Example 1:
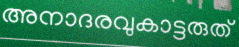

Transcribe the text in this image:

അനാദരവുകാട്ടരുത്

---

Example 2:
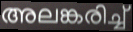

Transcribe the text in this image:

അലങ്കരിച്ച്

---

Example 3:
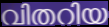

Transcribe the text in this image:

വിതറിയ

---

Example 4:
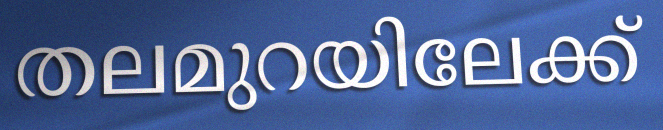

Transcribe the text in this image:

തലമുറയിലേക്ക്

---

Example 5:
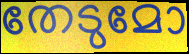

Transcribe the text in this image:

തേടുമോ